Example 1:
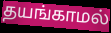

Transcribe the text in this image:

தயங்காமல்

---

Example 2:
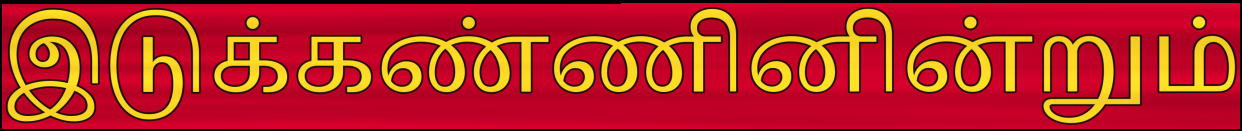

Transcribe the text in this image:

இடுக்கண்ணினின்றும்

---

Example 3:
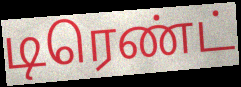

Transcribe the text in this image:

டிரெண்ட்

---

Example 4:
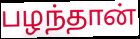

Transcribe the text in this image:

பழந்தான்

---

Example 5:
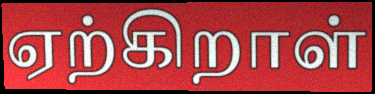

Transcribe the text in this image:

ஏற்கிறாள்